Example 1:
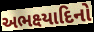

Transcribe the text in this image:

અભક્ષ્યાદિનો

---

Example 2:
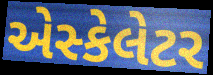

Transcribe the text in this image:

એસ્કેલેટર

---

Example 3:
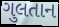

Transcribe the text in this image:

ગુલતાન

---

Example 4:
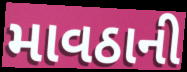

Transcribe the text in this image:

માવઠાની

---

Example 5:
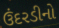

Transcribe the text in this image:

ઉંદરડીનો